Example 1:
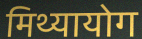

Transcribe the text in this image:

मिथ्यायोग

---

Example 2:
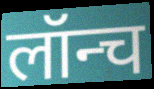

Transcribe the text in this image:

लॉन्‍च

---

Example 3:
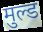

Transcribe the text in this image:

मुल्ड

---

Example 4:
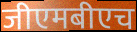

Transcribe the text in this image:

जीएमबीएच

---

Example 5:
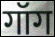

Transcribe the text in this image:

गॉग